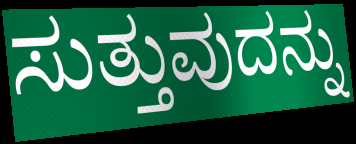
ಸುತ್ತುವುದನ್ನು